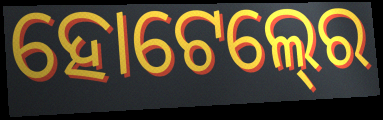
ହୋଟେଲ୍‍ରେ